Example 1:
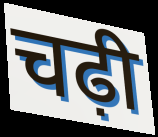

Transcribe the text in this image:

चढ़ी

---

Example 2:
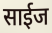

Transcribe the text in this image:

साईज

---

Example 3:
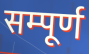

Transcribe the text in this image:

सम्पूर्ण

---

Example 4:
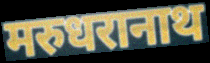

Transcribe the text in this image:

मरुधरानाथ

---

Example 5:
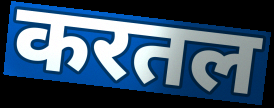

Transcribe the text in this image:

करतल